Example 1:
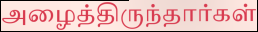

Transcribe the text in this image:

அழைத்திருந்தார்கள்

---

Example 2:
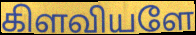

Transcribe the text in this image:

கிளவியளே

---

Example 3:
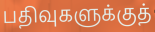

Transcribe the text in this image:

பதிவுகளுக்குத்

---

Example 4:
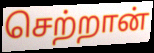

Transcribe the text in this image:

செற்றான்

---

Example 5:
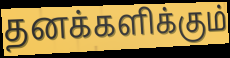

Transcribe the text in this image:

தனக்களிக்கும்